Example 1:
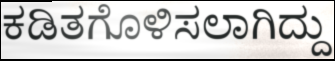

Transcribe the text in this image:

ಕಡಿತಗೊಳಿಸಲಾಗಿದ್ದು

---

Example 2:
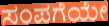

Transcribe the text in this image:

ಸಂಪಗೆಯೇ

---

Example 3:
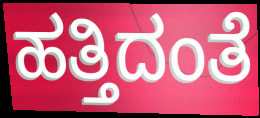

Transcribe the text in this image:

ಹತ್ತಿದಂತೆ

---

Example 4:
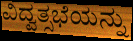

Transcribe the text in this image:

ವಿದ್ವತ್ಸಭೆಯನ್ನು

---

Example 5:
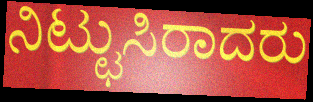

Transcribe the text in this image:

ನಿಟ್ಟುಸಿರಾದರು